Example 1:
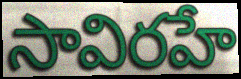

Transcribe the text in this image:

సావిరహే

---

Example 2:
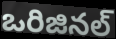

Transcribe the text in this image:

ఒరిజినల్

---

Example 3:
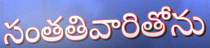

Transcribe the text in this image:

సంతతివారితోను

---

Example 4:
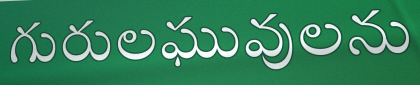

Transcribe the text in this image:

గురులఘువులను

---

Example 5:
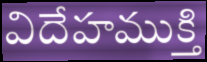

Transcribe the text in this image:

విదేహముక్తి